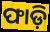
ଫାଡ଼ି